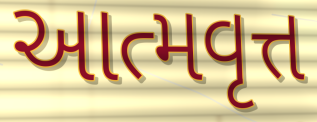
આત્મવૃત્ત